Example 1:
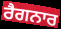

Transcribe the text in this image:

ਰੈਗਨਾਰ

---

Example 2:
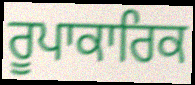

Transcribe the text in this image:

ਰੂਪਾਕਾਰਿਕ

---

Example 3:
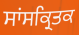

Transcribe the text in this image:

ਸਾਂਸਕ੍ਰਿਤਕ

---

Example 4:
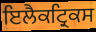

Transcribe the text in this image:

ਇਲੈਕਟ੍ਰਿਕਸ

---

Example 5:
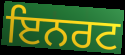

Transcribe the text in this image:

ਇਨਰਟ